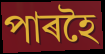
পাৰহৈ